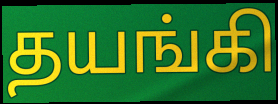
தயங்கி